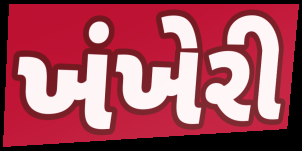
ખંખેરી